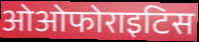
ओओफोराइटिस